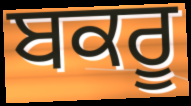
ਬਕਰੂ